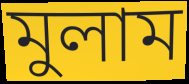
মুলাম